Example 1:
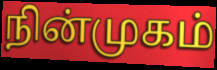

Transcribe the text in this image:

நின்முகம்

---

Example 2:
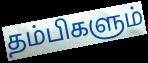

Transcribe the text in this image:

தம்பிகளும்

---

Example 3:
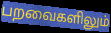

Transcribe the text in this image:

பறவைகளிலும்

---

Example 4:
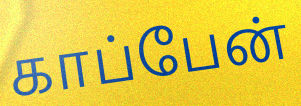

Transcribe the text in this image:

காப்பேன்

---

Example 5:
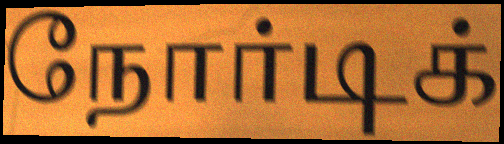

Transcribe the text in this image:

நோர்டிக்